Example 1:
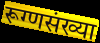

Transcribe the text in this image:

रूग्णसंख्या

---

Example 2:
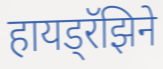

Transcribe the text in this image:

हायड्रॅझिने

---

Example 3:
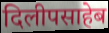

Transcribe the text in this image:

दिलीपसाहेब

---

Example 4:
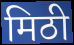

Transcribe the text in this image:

मिठी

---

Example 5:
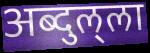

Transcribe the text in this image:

अब्दुल्ला